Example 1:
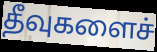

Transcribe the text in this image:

தீவுகளைச்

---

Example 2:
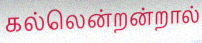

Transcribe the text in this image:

கல்லென்றன்றால்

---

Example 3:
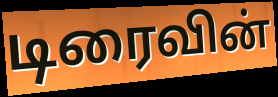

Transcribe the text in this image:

டிரைவின்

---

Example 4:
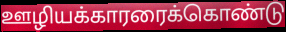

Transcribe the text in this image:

ஊழியக்காரரைக்கொண்டு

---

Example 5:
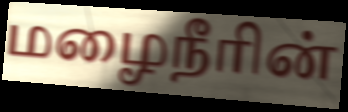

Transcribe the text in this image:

மழைநீரின்